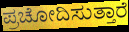
ಪ್ರಚೋದಿಸುತ್ತಾರೆ